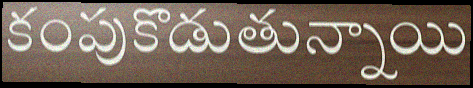
కంపుకొడుతున్నాయి